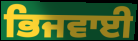
ਭਿਜਵਾਈ